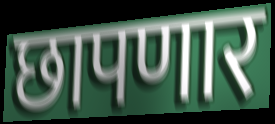
छापणार